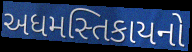
અધમસ્તિકાયનો